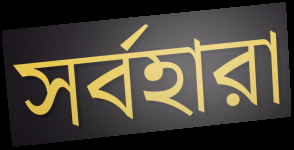
সর্বহারা